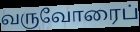
வருவோரைப்